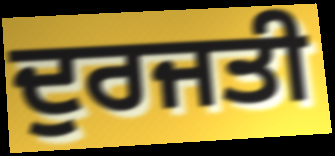
ਦੁਰਜਤੀ